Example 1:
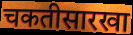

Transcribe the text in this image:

चकतीसारखा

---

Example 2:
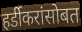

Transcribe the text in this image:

हर्डीकरांसोबत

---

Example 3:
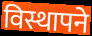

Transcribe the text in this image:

विस्थापने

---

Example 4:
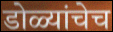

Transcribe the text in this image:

डोळ्यांचेच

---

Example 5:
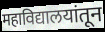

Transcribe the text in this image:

महाविद्यालयांतून